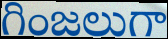
గింజలుగా